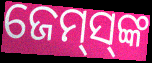
ଜେମ୍‌ସ୍‌ଙ୍କ